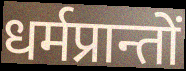
धर्मप्रान्तों